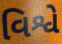
વિશ્વે